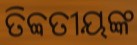
ତିବ୍ବତୀୟଙ୍କ